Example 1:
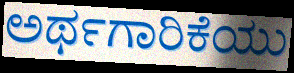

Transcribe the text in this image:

ಅರ್ಥಗಾರಿಕೆಯು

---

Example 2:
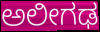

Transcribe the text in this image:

ಅಲೀಗಢ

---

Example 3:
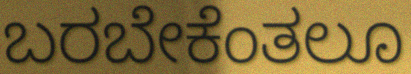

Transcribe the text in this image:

ಬರಬೇಕೆಂತಲೂ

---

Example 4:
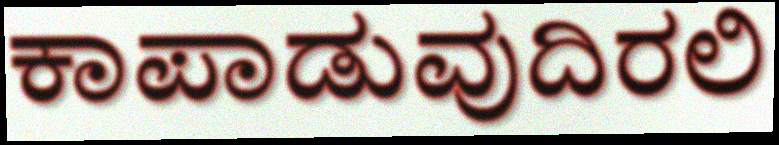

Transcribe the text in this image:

ಕಾಪಾಡುವುದಿರಲಿ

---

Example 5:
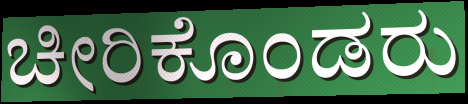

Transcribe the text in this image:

ಚೀರಿಕೊಂಡರು